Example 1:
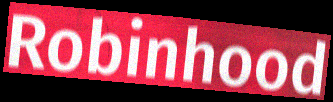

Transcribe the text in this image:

Robinhood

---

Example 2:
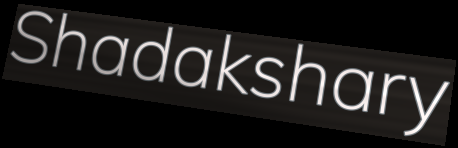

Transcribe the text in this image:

Shadakshary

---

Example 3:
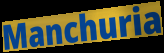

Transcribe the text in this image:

Manchuria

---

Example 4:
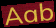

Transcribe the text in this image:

Aab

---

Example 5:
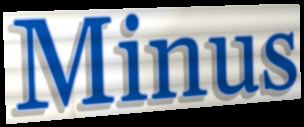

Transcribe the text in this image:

Minus